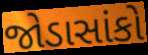
જોડાસાંકો